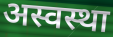
अस्वस्था